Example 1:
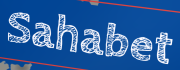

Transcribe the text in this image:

Sahabet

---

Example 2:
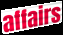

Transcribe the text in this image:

affairs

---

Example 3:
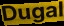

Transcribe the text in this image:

Dugal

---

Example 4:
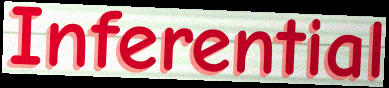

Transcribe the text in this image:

Inferential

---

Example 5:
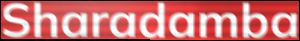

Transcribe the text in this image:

Sharadamba